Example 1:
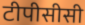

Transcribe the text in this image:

टीपीसीसी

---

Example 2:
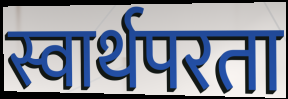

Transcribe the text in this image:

स्वार्थपरता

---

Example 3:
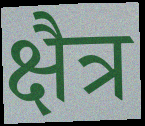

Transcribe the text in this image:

क्षैत्र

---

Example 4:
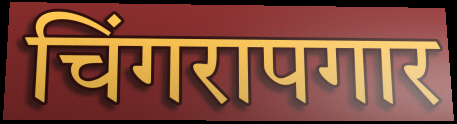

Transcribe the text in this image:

चिंगरापगार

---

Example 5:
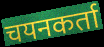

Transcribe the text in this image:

चयनकर्ता